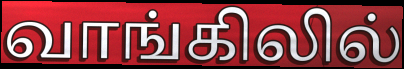
வாங்கிலில்